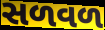
સળવળ